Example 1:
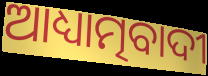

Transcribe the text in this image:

ଆଧ୍ୟାତ୍ମବାଦୀ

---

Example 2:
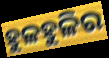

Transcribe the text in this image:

ହୁଳହୁଳିର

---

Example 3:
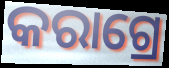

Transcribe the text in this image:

କରାଗ୍ରେ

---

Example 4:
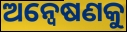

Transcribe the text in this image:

ଅନ୍ବେଷଣକୁ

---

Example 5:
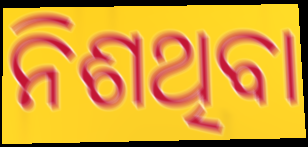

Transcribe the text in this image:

ନିଶଥିବା